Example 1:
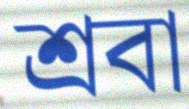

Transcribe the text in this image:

শ্রবা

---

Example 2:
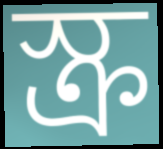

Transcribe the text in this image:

স্ক্র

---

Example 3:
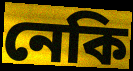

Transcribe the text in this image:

নেকি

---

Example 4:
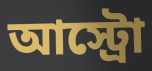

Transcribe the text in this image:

আস্ট্রো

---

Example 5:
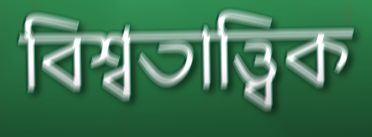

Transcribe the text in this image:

বিশ্বতাত্ত্বিক